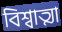
বিশ্বাত্মা